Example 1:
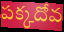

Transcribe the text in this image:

పక్కదోవ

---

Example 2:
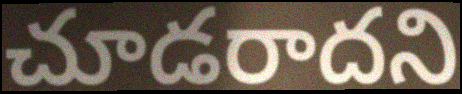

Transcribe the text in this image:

చూడరాదని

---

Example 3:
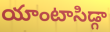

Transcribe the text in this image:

యాంటాసిడ్గా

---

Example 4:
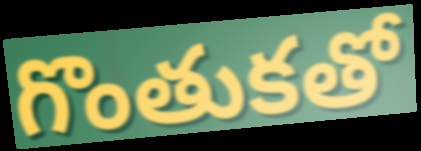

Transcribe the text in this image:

గొంతుకతో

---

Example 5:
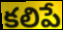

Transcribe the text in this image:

కలిపే